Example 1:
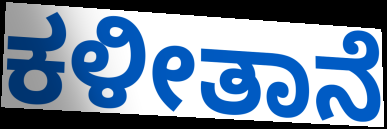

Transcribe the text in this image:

ಕಳೀತಾನೆ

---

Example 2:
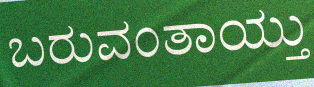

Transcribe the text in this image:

ಬರುವಂತಾಯ್ತು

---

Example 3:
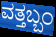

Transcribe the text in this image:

ವತ್ತಬ್ಬಂ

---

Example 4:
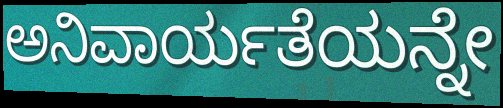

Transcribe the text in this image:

ಅನಿವಾರ್ಯತೆಯನ್ನೇ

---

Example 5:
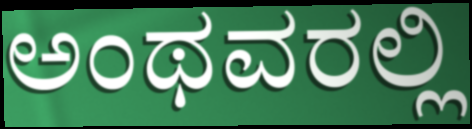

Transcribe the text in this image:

ಅಂಥವರಲ್ಲಿ